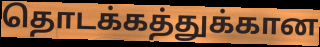
தொடக்கத்துக்கான